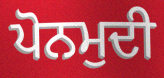
ਪੋਨਮੁਦੀ